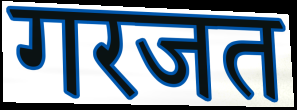
गरजत